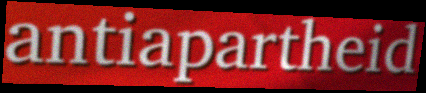
antiapartheid